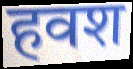
हवश